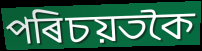
পৰিচয়তকৈ